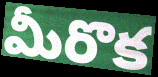
మీరొక